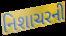
નિશાચરની